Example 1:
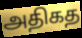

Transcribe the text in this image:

அதிகத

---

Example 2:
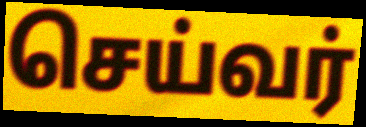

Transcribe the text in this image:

செய்வர்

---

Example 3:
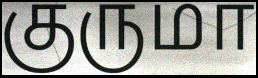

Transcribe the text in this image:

குருமா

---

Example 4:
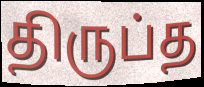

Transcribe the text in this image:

திருப்த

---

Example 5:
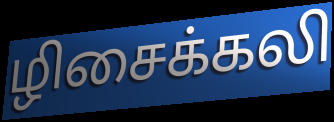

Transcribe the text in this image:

ழிசைக்கலி